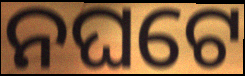
ନଘଟେ